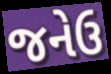
જનેઉ